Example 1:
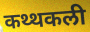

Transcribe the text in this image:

कथ्थकली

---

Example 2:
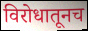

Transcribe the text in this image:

विरोधातूनच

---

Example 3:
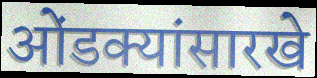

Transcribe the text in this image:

ओंडक्यांसारखे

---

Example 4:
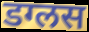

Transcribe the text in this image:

डग्लस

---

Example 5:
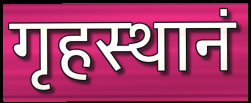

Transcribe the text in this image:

गृहस्थानं